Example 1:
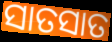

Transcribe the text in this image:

ସାତସାତ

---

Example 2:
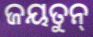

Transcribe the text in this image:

ଜୟତୁନ୍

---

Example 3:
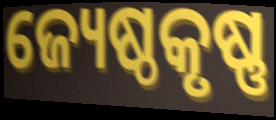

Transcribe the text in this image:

ଜ୍ୟେଷ୍ଠକୃଷ୍ଣ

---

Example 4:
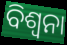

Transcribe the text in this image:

ବିଶ୍ୱନା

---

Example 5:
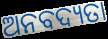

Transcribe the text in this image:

ଅନବଦ୍ୟତା